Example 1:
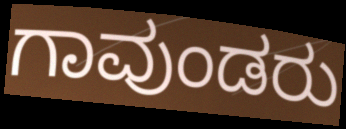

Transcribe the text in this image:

ಗಾವುಂಡರು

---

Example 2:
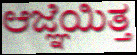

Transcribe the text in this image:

ಆಜ್ಞೆಯಿತ್ತ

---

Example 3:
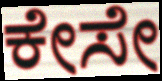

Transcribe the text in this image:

ಕೇಸೇ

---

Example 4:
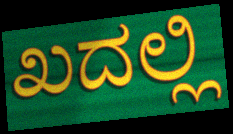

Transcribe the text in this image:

ಖದಲ್ಲಿ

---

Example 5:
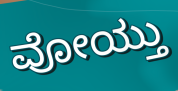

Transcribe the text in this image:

ವೋಯ್ತು